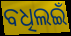
ବଧିଲଇଁ